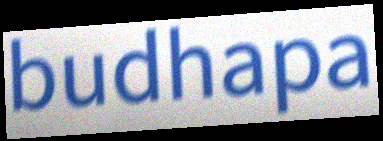
budhapa